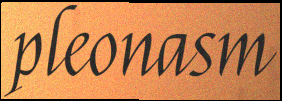
pleonasm